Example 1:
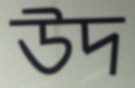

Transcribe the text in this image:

উদ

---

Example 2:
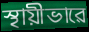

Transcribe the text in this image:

স্থায়ীভাৱে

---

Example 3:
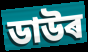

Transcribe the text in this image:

ডাউৰ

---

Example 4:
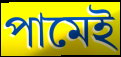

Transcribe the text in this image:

পামেই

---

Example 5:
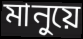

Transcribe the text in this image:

মানুয়ে